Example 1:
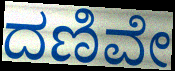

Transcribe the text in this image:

ದಣಿವೇ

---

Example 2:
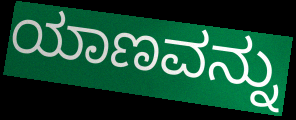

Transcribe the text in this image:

ಯಾಣವನ್ನು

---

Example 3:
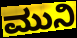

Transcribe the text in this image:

ಮುನಿ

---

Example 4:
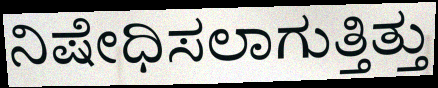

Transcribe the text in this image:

ನಿಷೇಧಿಸಲಾಗುತ್ತಿತ್ತು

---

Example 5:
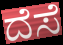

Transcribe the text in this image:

ದೆಸೆ